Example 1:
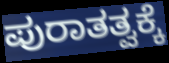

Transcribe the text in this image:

ಪುರಾತತ್ವಕ್ಕೆ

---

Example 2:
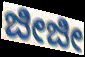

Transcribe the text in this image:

ಜೀಜೀ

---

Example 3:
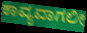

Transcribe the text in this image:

ಕಾವ್ಯವಾಗಲೀ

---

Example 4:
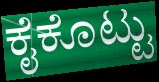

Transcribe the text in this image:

ಕೈಕೊಟ್ಟು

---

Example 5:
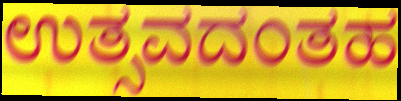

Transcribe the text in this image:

ಉತ್ಸವದಂತಹ